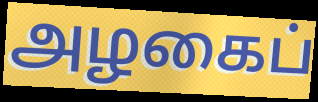
அழகைப்